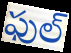
ఫుల్